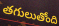
తగులుతోంది